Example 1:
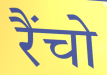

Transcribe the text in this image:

रैंचो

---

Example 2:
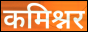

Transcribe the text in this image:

कमिश्नर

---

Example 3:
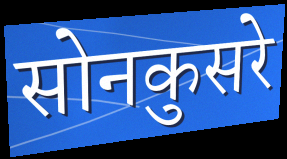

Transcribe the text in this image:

सोनकुसरे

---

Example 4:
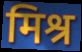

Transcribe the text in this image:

मिश्र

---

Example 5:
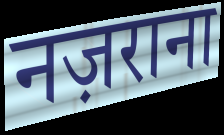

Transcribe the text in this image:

नज़राना